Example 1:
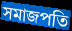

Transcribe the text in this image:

সমাজপতি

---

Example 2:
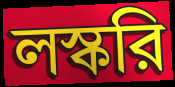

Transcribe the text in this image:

লস্করি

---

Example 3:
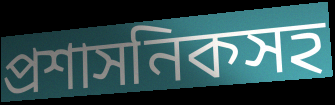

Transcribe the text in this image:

প্রশাসনিকসহ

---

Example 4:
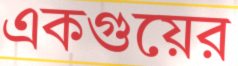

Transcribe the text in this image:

একগুয়ের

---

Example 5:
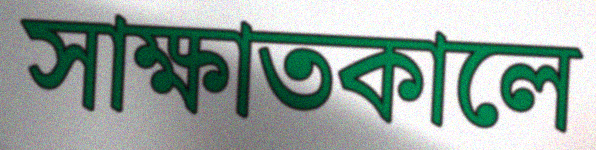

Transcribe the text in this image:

সাক্ষাতকালে